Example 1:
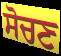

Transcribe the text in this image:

ਸੋਚਣ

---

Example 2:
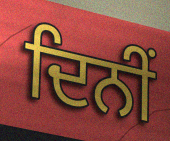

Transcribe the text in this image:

ਦਿਨੀਂ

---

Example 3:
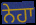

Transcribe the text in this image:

ਨੇਹਾ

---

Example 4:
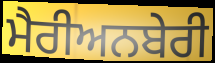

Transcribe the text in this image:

ਮੈਰੀਅਨਬੇਰੀ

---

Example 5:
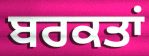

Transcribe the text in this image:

ਬਰਕਤਾਂ